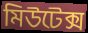
মিউটেক্স